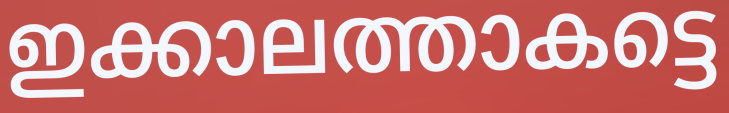
ഇക്കാലത്താകട്ടെ